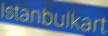
Istanbulkart